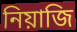
নিয়াজি